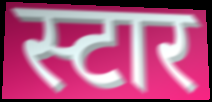
स्टार